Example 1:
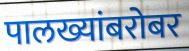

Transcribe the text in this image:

पालख्यांबरोबर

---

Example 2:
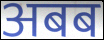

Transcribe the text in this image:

अबब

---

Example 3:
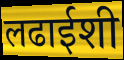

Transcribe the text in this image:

लढाईशी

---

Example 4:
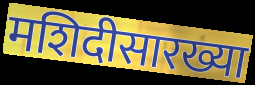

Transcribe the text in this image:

मशिदीसारख्या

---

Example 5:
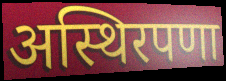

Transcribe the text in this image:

अस्थिरपणा